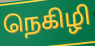
நெகிழி